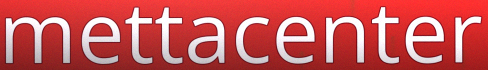
mettacenter